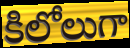
కిలోలుగా